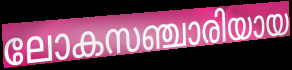
ലോകസഞ്ചാരിയായ